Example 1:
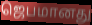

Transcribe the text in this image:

ஜெபமானது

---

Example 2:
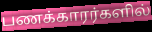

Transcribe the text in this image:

பணக்காரர்களில்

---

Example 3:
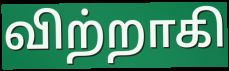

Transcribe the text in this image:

விற்றாகி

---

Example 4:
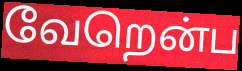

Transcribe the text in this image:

வேறென்ப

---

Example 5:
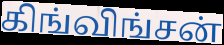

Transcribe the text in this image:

கிங்விங்சன்